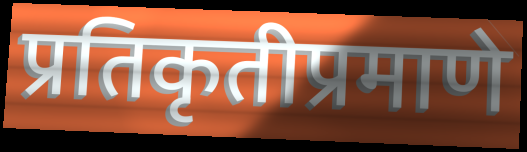
प्रतिकृतीप्रमाणे